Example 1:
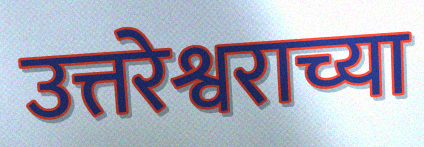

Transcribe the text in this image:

उत्तरेश्वराच्या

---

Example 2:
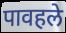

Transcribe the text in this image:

पावहले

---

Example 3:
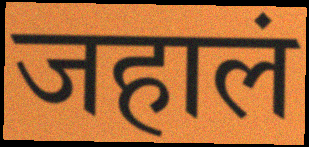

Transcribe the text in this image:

जहालं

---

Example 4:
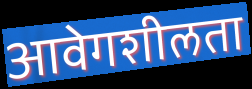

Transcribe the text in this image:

आवेगशीलता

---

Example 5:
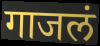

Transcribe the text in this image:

गाजलं